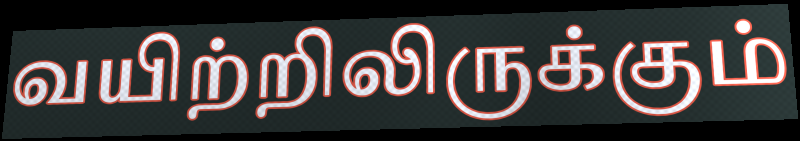
வயிற்றிலிருக்கும்